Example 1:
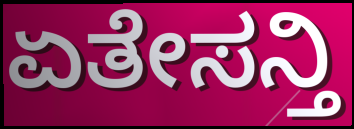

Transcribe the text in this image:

ಏತೇಸನ್ತಿ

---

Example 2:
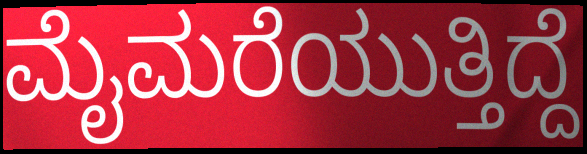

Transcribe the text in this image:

ಮೈಮರೆಯುತ್ತಿದ್ದೆ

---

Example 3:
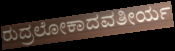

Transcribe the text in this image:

ರುದ್ರಲೋಕಾದವತೀರ್ಯ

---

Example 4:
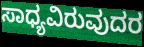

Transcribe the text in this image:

ಸಾಧ್ಯವಿರುವುದರ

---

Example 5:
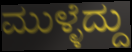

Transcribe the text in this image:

ಮುಳ್ಳೆದ್ದು